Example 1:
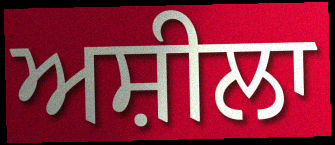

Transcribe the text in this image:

ਅਸ਼ੀਲਾ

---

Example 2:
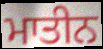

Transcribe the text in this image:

ਮਾਤੀਨ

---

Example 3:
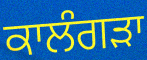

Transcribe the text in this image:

ਕਾਲੰਗੜਾ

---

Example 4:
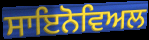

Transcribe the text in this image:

ਸਾਇਨੋਵਿਅਲ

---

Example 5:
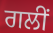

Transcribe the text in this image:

ਗਲੀਂ